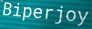
Biperjoy